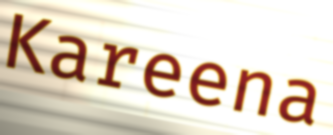
Kareena